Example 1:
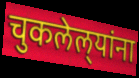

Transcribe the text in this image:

चुकलेल्यांना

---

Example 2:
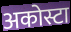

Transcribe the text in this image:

अकोस्टा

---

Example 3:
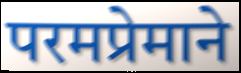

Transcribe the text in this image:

परमप्रेमाने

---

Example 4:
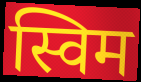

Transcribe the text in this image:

स्विम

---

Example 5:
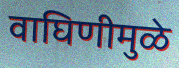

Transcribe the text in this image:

वाघिणीमुळे